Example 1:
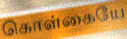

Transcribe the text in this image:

கொள்கையே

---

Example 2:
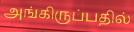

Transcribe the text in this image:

அங்கிருப்பதில்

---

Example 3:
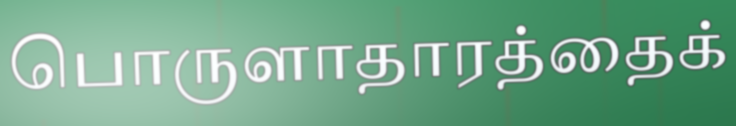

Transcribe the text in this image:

பொருளாதாரத்தைக்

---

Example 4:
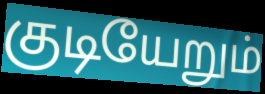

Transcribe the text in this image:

குடியேறும்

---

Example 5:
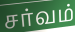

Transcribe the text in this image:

சர்வம்